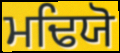
ਮਢਿਯੋ